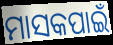
ମାସକପାଇଁ